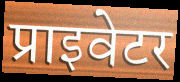
प्राइवेटर